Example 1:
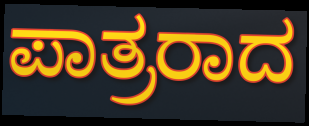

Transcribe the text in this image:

ಪಾತ್ರರಾದ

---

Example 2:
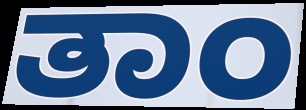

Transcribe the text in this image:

ತಾಂ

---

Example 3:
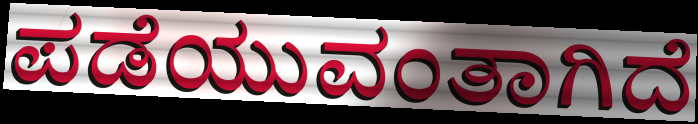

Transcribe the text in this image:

ಪಡೆಯುವಂತಾಗಿದೆ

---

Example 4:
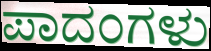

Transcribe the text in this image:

ಪಾದಂಗಳು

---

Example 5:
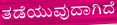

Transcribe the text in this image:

ತಡೆಯುವುದಾಗಿದೆ